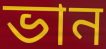
ভান